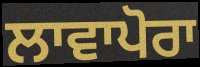
ਲਾਵਾਪੋਰਾ